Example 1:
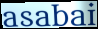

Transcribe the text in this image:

asabai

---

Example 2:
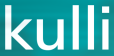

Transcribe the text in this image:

kulli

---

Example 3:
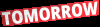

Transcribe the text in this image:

TOMORROW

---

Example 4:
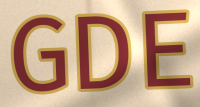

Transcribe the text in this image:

GDE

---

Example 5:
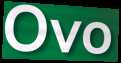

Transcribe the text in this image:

Ovo